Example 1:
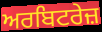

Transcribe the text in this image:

ਅਰਬਿਟਰੇਜ਼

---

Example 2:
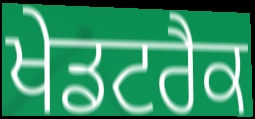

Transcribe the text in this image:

ਖੇਡਟਰੈਕ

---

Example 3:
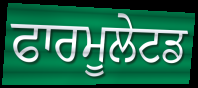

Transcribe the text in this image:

ਫਾਰਮੂਲੇਟਡ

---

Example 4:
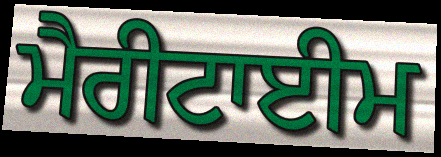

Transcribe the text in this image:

ਮੈਰੀਟਾਈਮ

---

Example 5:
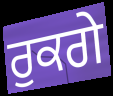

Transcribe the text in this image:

ਰੁਕਗੇ